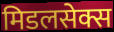
मिडलसेक्स